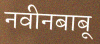
नवीनबाबू